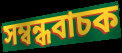
সম্বন্ধবাচক